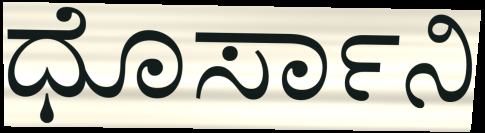
ಧೊರ್ಸಾನಿ